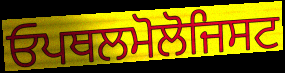
ਓਪਥਲਮੋਲੋਜਿਸਟ